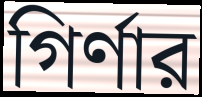
গির্ণার